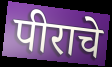
पीराचे